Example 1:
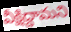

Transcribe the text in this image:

వీక్షిద్దామని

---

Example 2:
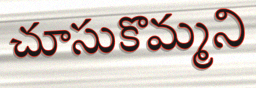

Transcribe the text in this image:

చూసుకొమ్మని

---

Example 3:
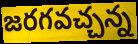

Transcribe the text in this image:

జరగవచ్చన్న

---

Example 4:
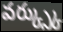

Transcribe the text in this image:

వర్క్స్కు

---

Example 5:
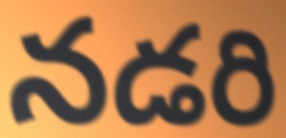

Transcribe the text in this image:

నడరి